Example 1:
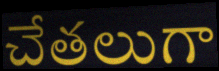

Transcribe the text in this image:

చేతలుగా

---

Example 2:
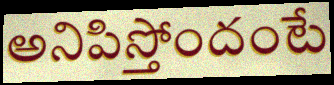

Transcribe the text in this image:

అనిపిస్తోందంటే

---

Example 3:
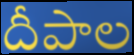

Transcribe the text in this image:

దీపాల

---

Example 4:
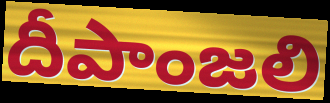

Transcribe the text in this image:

దీపాంజలి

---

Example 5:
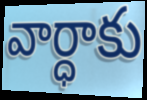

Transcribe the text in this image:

వార్ధాకు